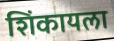
शिंकायला